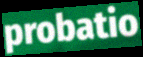
probatio